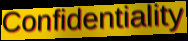
Confidentiality